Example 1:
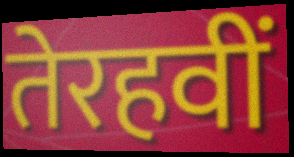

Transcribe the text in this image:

तेरहवीं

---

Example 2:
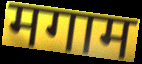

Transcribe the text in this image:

मगाम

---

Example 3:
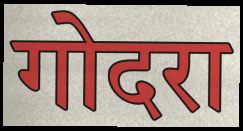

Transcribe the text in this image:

गोदरा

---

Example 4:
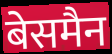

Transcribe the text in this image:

बेसमैन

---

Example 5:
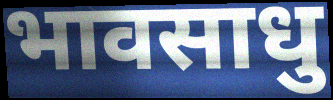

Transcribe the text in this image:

भावसाधु